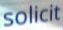
solicit